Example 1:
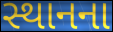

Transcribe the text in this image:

સ્થાનના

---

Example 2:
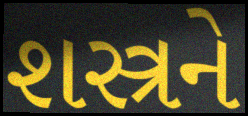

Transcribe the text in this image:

શસ્ત્રને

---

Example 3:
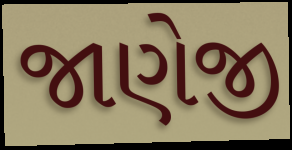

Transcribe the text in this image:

જાણેજી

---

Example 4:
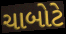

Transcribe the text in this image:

ચાબોટે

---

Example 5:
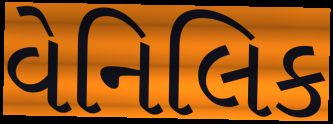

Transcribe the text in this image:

વેનિલિક